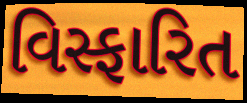
વિસ્ફારિત